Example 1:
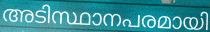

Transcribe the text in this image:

അടിസ്ഥാനപരമായി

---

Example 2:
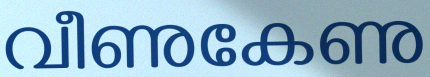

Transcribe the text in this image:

വീണുകേണു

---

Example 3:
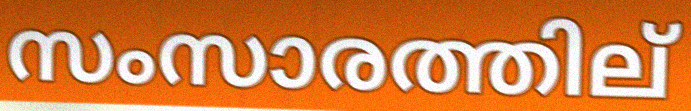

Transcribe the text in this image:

സംസാരത്തില്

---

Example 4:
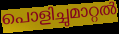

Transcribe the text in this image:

പൊളിച്ചുമാറ്റൽ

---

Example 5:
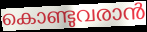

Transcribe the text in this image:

കൊണ്ടുവരാൻ